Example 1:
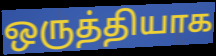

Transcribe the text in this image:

ஒருத்தியாக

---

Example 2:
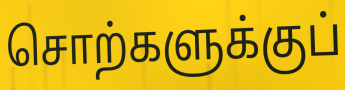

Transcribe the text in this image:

சொற்களுக்குப்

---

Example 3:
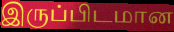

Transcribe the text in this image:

இருப்பிடமான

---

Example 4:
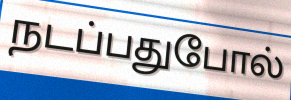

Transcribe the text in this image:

நடப்பதுபோல்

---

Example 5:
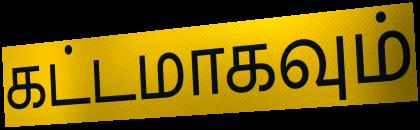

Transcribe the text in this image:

கட்டமாகவும்